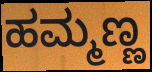
ಹಮ್ಮಣ್ಣ